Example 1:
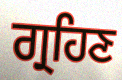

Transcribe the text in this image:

ਗ੍ਰਹਿਣ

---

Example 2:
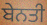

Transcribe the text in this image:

ਬੇਨਤੀ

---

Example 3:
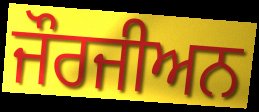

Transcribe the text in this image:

ਜੌਰਜੀਅਨ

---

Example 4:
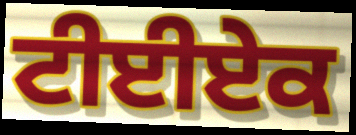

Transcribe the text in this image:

ਟੀਈਏਕ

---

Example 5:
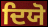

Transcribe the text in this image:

ਦਿਯੋ